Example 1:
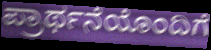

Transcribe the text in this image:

ಪ್ರಾರ್ಥನೆಯೊಂದಿಗೆ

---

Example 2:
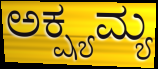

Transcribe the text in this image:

ಅಕ್ಷ್ಯಮ್ಯ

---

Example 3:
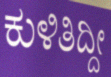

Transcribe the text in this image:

ಕುಳಿತಿದ್ದೀ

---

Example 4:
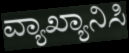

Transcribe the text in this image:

ವ್ಯಾಖ್ಯಾನಿಸಿ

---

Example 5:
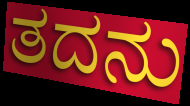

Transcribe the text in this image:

ತದನು